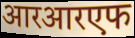
आरआरएफ